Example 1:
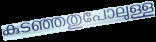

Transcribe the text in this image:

കുടഞ്ഞതുപോലുള്ള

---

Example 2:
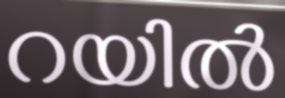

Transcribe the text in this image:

റയിൽ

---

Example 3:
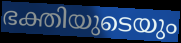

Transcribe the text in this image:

ഭക്തിയുടെയും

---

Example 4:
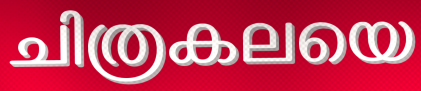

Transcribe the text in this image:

ചിത്രകലയെ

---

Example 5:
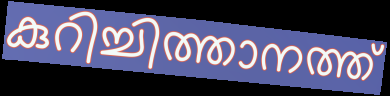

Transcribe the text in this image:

കുറിച്ചിത്താനത്ത്